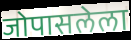
जोपासलेला